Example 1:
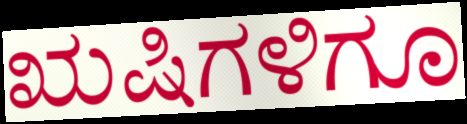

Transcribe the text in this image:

ಋಷಿಗಳಿಗೂ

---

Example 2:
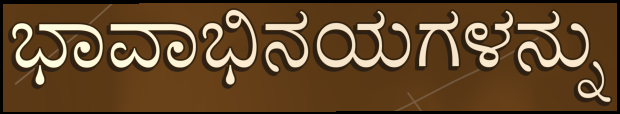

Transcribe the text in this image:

ಭಾವಾಭಿನಯಗಳನ್ನು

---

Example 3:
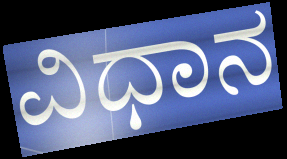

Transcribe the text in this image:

ವಿಧಾನ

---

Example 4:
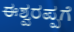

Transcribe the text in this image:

ಈಶ್ವರಪ್ಪಗೆ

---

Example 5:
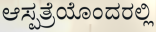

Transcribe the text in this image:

ಆಸ್ಪತ್ರೆಯೊಂದರಲ್ಲಿ